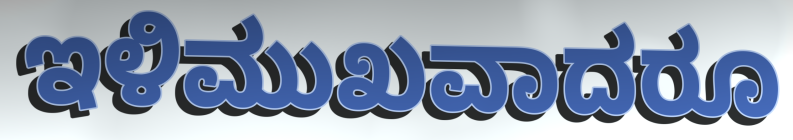
ಇಳಿಮುಖವಾದರೂ